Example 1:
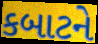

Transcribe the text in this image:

કબાટને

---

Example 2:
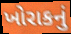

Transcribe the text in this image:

ખોરાકનું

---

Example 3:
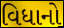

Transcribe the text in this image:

વિધાનો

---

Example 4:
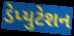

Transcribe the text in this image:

ડેપ્યુટેશન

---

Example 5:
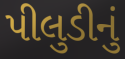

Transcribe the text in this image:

પીલુડીનું